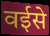
वईसे